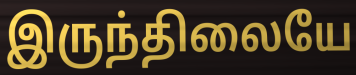
இருந்திலையே